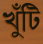
খুঁটি